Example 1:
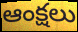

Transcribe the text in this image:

ఆంక్షలు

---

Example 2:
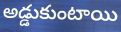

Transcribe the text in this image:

అడ్డుకుంటాయి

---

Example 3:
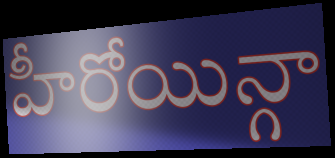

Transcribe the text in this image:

హీరోయిన్గా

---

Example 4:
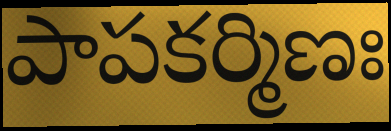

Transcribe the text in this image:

పాపకర్మిణః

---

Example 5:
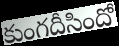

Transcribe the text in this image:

కుంగదీసిందో